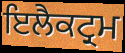
ਇਲੈਕਟ੍ਰਮ